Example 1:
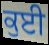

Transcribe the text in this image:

ਕੁਈ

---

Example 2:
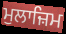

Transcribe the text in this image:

ਮੁਲਾਜ਼ਿਮ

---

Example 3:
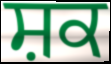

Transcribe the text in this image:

ਸ਼ਕ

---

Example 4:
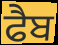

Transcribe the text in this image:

ਫੈਬ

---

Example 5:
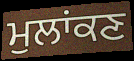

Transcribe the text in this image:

ਮੁਲਾਂਕਣ